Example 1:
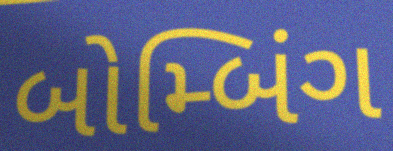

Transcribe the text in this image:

બોમ્બિંગ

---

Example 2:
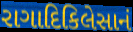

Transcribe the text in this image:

રાગાદિકિલેસાનં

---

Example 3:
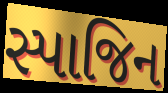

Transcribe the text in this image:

સ્પાજિન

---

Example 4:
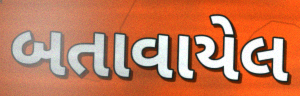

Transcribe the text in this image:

બતાવાયેલ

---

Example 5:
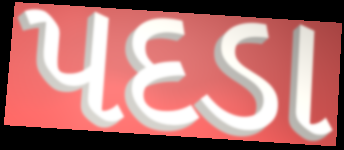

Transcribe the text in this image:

પદડા